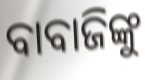
ବାବାଜିଙ୍କୁ